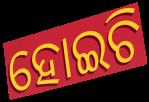
ହୋଇଚି